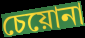
চেয়োনা